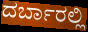
ದರ್ಬಾರಲ್ಲಿ